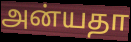
அன்யதா